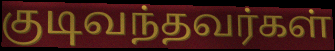
குடிவந்தவர்கள்